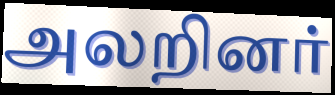
அலறினர்